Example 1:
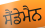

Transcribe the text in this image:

ਸੈਂਡੇਮੈਨ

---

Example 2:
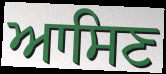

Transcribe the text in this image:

ਆਸਿਣ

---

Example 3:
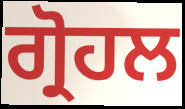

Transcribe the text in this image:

ਗ੍ਰੋਹਲ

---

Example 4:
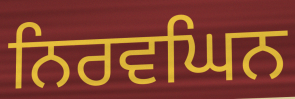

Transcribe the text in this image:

ਨਿਰਵਘਿਨ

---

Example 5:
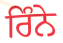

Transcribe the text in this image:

ਰਿੰਨੇ